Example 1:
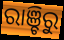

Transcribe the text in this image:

ରାଞ୍ଚିରୁ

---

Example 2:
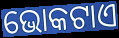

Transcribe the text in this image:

ଭୋକଟାଏ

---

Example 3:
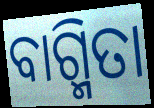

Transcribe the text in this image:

ବାଗ୍ମିତା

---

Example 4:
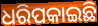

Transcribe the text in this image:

ଧରିପକାଇଛି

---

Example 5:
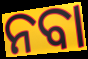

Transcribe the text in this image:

ନବା